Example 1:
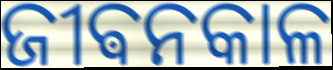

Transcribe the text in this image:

ଜୀଵନକାଳ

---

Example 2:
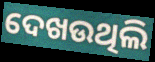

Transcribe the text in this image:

ଦେଖଉଥିଲି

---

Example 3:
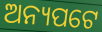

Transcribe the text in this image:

ଅନ୍ୟପଟେ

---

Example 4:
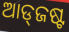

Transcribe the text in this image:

ଆଡ୍‌ଜଷ୍ଟ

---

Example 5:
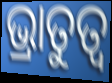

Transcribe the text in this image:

ଭ୍ରାତୁତ୍ଵ